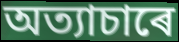
অত্যাচাৰে